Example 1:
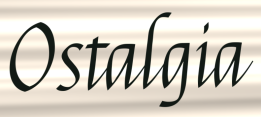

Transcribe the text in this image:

Ostalgia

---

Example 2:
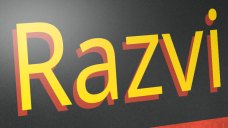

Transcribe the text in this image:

Razvi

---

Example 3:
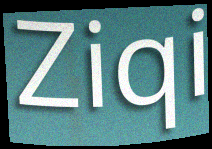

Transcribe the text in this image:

Ziqi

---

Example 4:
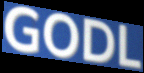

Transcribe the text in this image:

GODL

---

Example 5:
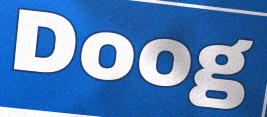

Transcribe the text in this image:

Doog